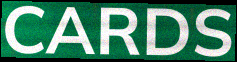
CARDS